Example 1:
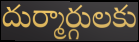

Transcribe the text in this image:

దుర్మార్గులకు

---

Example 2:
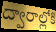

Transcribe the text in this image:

ద్వారాల్లోకి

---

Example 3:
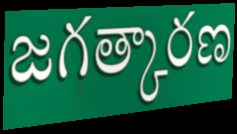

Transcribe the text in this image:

జగత్కారణ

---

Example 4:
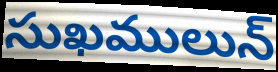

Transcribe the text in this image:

సుఖములున్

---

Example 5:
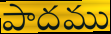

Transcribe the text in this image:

పాదము